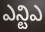
ఎన్టిఎ